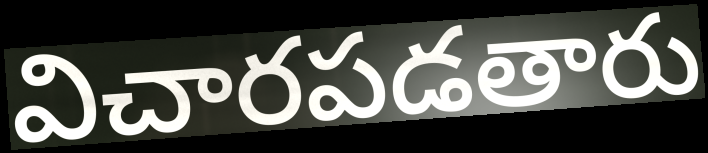
విచారపడతారు